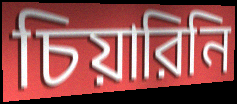
চিয়ারিনি